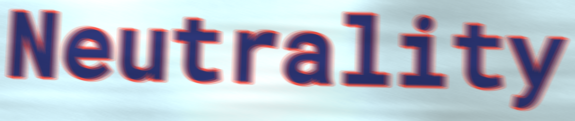
Neutrality